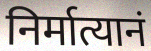
निर्मात्यानं